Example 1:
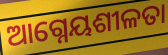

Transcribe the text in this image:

ଆଗ୍ନେୟଶୀଳତା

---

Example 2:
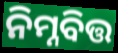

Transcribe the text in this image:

ନିମ୍ନବିତ୍ତ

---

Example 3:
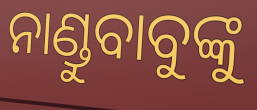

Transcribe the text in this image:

ନାଣ୍ଡୁବାବୁଙ୍କୁ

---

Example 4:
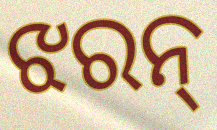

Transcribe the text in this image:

ଝରନ୍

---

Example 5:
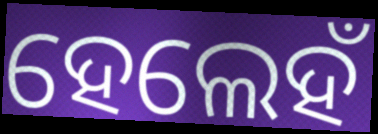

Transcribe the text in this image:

ହେଲେହଁ